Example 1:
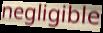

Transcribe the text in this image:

negligible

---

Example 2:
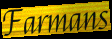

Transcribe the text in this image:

Farmans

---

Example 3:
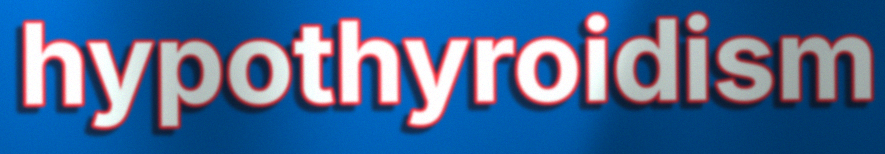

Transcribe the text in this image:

hypothyroidism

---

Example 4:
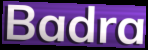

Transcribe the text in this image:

Badra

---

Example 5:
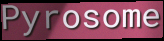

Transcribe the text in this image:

Pyrosome